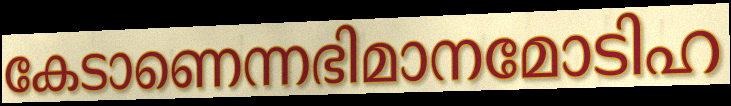
കേടാണെന്നഭിമാനമോടിഹ